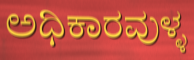
ಅಧಿಕಾರವುಳ್ಳ